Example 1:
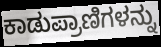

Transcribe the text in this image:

ಕಾಡುಪ್ರಾಣಿಗಳನ್ನು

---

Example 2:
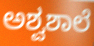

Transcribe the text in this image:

ಅಶ್ವಶಾಲೆ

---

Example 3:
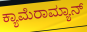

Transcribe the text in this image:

ಕ್ಯಾಮೆರಾಮ್ಯಾನ್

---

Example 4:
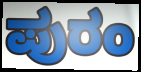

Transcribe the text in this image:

ಪುರಂ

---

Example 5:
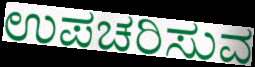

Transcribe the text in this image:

ಉಪಚರಿಸುವ